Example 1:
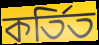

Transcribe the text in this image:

কৰ্তিত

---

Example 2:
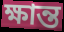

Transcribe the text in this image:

ক্ষান্ত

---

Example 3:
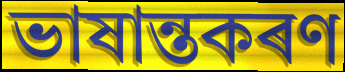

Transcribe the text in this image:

ভাষান্তকৰণ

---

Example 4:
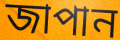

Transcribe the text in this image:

জাপান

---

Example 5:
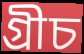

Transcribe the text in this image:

গ্ৰীচ